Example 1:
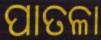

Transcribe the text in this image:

ପାତଳା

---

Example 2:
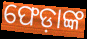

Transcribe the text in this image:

ଫେଡ଼ାଙ୍କ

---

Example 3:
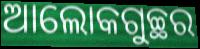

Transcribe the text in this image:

ଆଲୋକଗୁଚ୍ଛର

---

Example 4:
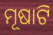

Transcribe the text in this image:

ମୂଷାଟି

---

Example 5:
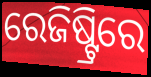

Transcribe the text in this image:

ରେଜିଷ୍ଟ୍ରିରେ